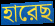
হারেছ